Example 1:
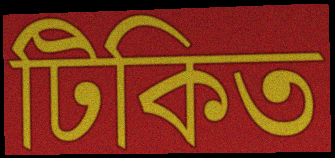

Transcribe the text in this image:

টিকিত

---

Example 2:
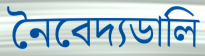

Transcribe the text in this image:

নৈবেদ্যডালি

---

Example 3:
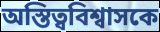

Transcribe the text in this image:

অস্তিত্ববিশ্বাসকে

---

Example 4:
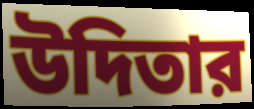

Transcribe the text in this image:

উদিতার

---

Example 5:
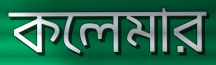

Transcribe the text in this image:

কলেমার